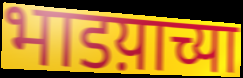
भाडय़ाच्या